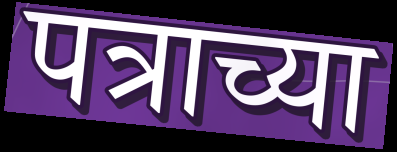
पत्राच्या